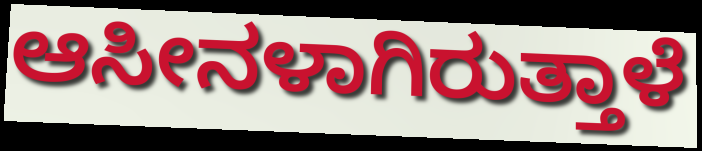
ಆಸೀನಳಾಗಿರುತ್ತಾಳೆ